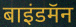
बाइंडमॅन